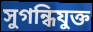
সুগন্ধিযুক্ত